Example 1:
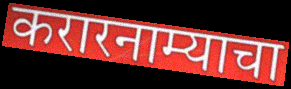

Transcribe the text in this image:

करारनाम्याचा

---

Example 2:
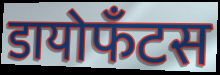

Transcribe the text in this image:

डायोफँटस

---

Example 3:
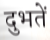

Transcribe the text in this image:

दुभतें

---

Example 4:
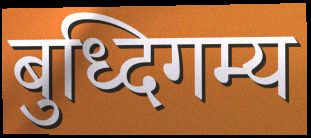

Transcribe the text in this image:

बुध्दिगम्य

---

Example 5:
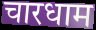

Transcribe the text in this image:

चारधाम